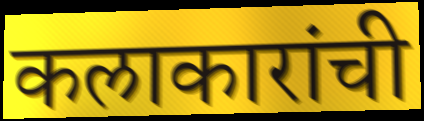
कलाकारांची